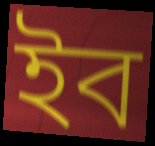
ইব